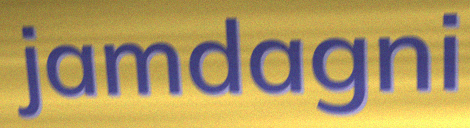
jamdagni